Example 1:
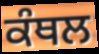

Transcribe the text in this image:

ਕੰਥਲ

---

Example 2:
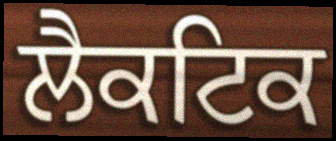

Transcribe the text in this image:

ਲੈਕਟਿਕ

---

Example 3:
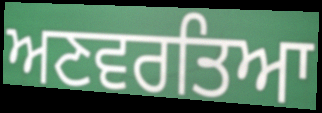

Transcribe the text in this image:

ਅਣਵਰਤਿਆ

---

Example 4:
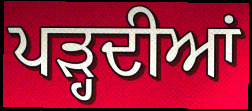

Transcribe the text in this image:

ਪੜ੍ਹਦੀਆਂ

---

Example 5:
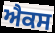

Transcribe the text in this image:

ਐਕਸ